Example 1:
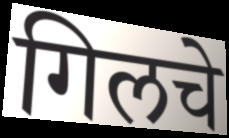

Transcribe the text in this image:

गिलचे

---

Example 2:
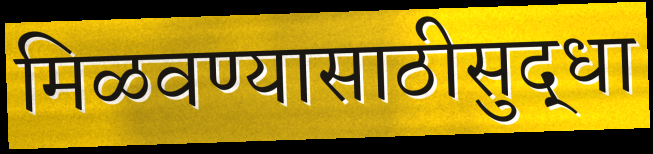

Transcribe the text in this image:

मिळवण्यासाठीसुद्धा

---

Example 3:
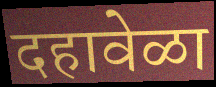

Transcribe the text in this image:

दहावेळा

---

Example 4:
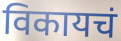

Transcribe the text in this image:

विकायचं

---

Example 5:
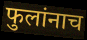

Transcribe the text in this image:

फुलांनाच